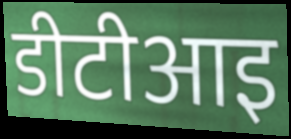
डीटीआइ